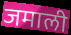
जमाली